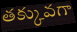
తక్కువగా